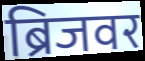
ब्रिजवर